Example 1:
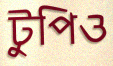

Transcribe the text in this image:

টুপিও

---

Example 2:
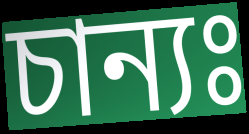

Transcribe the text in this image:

চান্যঃ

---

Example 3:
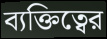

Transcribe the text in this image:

ব্যক্তিত্বের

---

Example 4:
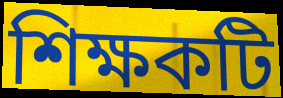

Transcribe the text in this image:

শিক্ষকটি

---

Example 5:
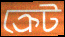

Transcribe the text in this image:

ক্রেট